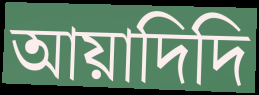
আয়াদিদি